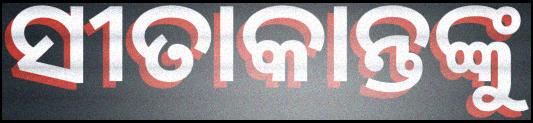
ସୀତାକାନ୍ତଙ୍କୁ